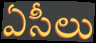
ఏసీలు